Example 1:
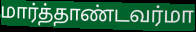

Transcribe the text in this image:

மார்த்தாண்டவர்மா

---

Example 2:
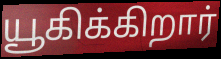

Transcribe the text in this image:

யூகிக்கிறார்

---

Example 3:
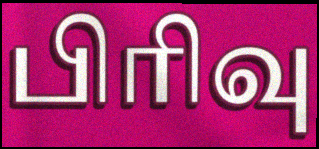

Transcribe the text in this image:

பிரிவு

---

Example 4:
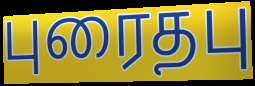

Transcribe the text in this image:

புரைதபு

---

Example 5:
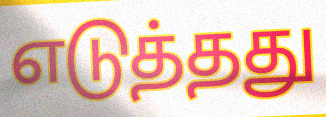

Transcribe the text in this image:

எடுத்தது